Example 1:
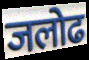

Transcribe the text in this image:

जलोढ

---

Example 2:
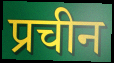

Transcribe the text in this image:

प्रचीन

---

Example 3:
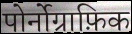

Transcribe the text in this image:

पोर्नोग्राफ़िक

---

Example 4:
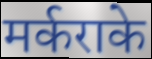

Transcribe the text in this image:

मर्कराके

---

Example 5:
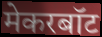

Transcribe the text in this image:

मेकरबॉट